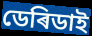
ডেৰিডাই